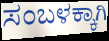
ಸಂಬಳಕ್ಕಾಗಿ